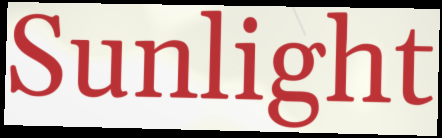
Sunlight